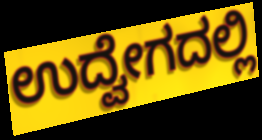
ಉದ್ವೇಗದಲ್ಲಿ